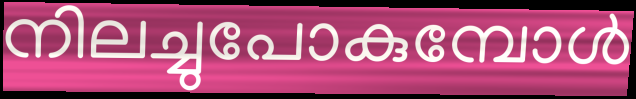
നിലച്ചുപോകുമ്പോൾ